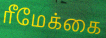
ரீமேக்கை